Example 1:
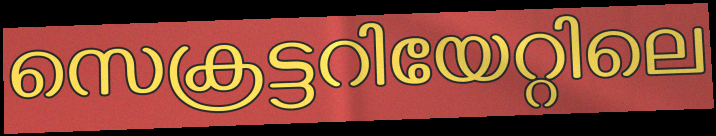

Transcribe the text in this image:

സെക്രട്ടറിയേറ്റിലെ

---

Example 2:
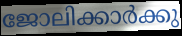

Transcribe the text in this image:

ജോലിക്കാർക്കു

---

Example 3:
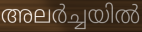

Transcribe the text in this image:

അലർച്ചയിൽ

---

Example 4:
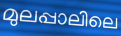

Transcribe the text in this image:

മുലപ്പാലിലെ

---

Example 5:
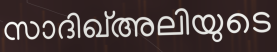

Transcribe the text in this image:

സാദിഖ്അലിയുടെ